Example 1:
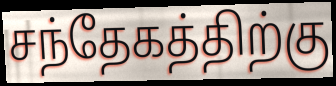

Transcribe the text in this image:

சந்தேகத்திற்கு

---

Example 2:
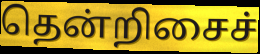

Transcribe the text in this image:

தென்றிசைச்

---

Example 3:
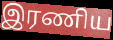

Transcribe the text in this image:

இரணிய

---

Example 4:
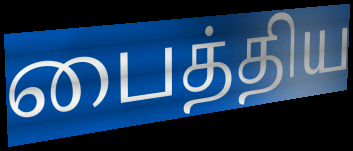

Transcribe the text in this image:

பைத்திய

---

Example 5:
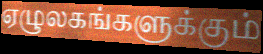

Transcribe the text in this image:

ஏழுலகங்களுக்கும்